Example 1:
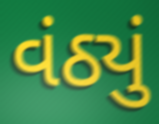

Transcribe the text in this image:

વંઠ્યું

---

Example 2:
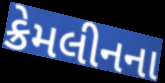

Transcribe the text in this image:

ક્રેમલીનના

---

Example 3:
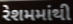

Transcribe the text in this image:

રેશમમાંથી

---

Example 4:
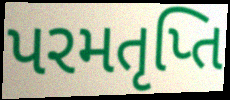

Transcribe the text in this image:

પરમતૃપ્તિ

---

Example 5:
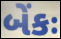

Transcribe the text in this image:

બેંકઃ